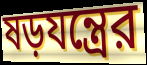
ষড়যন্ত্রের